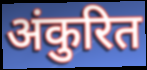
अंकुरित